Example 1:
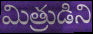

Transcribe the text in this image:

మిత్రుడిని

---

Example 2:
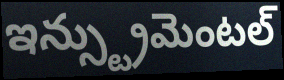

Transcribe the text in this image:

ఇన్స్ట్రుమెంటల్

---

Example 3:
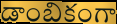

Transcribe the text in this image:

డాంబికంగా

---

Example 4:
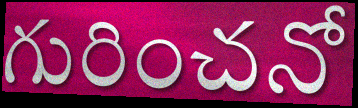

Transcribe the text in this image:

గురించనో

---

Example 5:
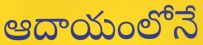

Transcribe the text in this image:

ఆదాయంలోనే